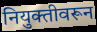
नियुक्तीवरून